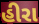
હીરા